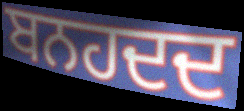
ਬਨਹਦਦ